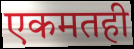
एकमतही